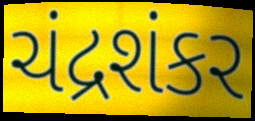
ચંદ્રશંકર